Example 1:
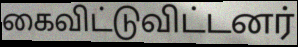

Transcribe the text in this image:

கைவிட்டுவிட்டனர்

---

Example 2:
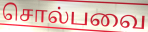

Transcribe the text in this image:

சொல்பவை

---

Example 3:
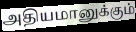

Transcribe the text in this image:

அதியமானுக்கும்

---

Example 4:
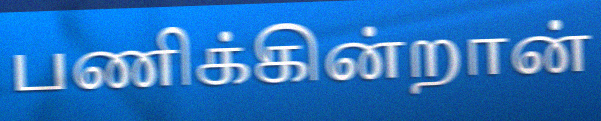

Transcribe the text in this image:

பணிக்கின்றான்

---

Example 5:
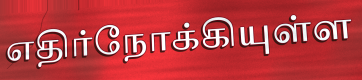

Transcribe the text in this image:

எதிர்நோக்கியுள்ள